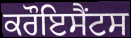
ਕਰੌਇਸੈਂਟਸ